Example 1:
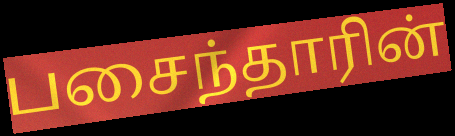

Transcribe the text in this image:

பசைந்தாரின்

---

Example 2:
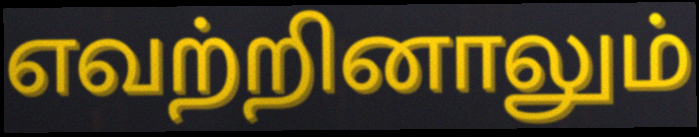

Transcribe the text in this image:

எவற்றினாலும்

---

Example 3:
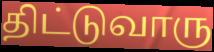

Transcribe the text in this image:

திட்டுவாரு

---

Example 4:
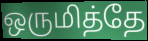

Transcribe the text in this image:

ஒருமித்தே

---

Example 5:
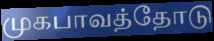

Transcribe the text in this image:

முகபாவத்தோடு